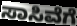
ಸಾಸಿವೆಗೆ